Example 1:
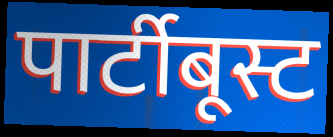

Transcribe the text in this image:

पार्टीबूस्ट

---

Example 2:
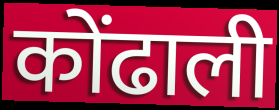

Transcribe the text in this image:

कोंढाली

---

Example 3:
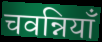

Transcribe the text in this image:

चवन्नियाँ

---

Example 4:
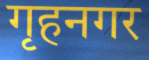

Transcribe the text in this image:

गृहनगर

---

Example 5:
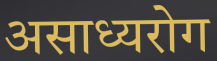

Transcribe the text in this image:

असाध्यरोग